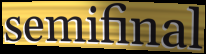
semifinal